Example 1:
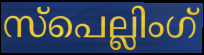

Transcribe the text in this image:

സ്പെല്ലിംഗ്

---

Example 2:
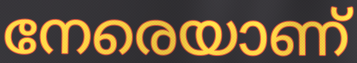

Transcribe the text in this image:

നേരെയാണ്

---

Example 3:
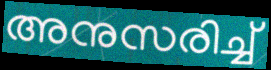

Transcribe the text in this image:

അനുസരിച്ച്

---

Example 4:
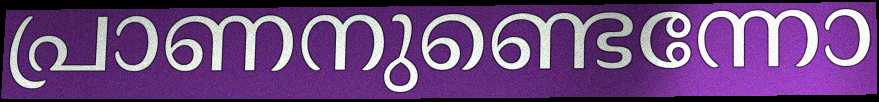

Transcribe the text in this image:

പ്രാണനുണ്ടെന്നോ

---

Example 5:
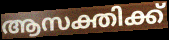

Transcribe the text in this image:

ആസക്തിക്ക്